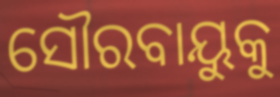
ସୌରବାୟୁକୁ